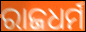
ରାଜଧର୍ମ